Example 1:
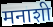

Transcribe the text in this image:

मनाशी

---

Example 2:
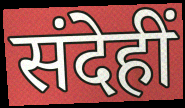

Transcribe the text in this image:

संदेहीं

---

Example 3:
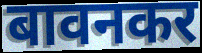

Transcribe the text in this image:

बावनकर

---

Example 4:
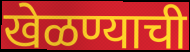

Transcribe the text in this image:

खेळण्याची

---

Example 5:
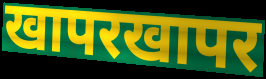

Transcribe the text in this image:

खापरखापर